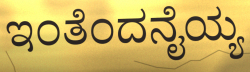
ಇಂತೆಂದನೈಯ್ಯ